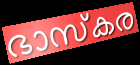
ഭാസ്കര